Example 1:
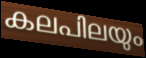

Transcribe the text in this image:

കലപിലയും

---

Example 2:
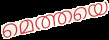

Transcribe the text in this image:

മെത്തയെ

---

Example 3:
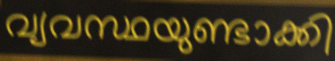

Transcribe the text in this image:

വ്യവസ്ഥയുണ്ടാക്കി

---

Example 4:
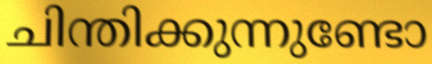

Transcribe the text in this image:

ചിന്തിക്കുന്നുണ്ടോ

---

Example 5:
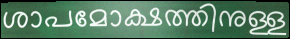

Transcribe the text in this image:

ശാപമോക്ഷത്തിനുള്ള